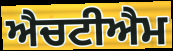
ਐਚਟੀਐਮ